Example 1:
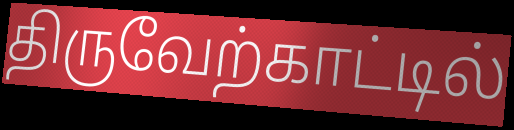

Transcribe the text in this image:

திருவேற்காட்டில்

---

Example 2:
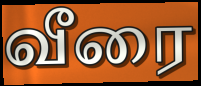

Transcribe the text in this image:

வீரை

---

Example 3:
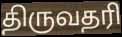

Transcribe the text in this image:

திருவதரி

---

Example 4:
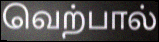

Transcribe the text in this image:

வெற்பால்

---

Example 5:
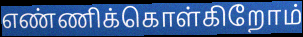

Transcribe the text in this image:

எண்ணிக்கொள்கிறோம்